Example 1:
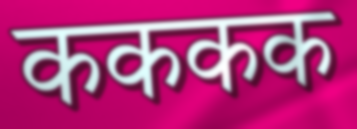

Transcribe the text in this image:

कककक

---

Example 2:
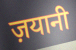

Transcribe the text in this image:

ज़यानी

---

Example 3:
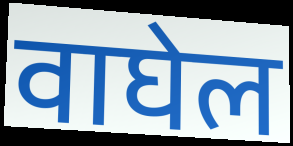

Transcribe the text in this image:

वाघेल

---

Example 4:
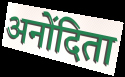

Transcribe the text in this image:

अनोंदिता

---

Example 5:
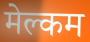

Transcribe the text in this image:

मेल्कम